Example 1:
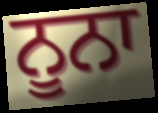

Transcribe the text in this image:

ਨੂਨਾ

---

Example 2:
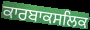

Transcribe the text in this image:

ਕਾਰਬਾਕਸਲਿਕ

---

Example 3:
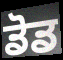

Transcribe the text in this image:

ਡੋਡ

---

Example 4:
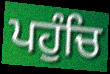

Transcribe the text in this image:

ਪਹੁੰਚਿ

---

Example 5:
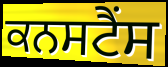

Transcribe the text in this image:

ਕਨਸਟੈਂਸ